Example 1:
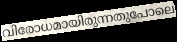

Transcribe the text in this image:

വിരോധമായിരുന്നതുപോലെ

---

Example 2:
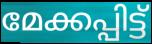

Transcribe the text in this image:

മേക്കപ്പിട്ട്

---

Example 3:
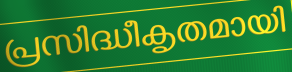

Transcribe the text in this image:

പ്രസിദ്ധീകൃതമായി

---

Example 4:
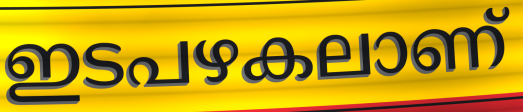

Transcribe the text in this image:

ഇടപഴകലാണ്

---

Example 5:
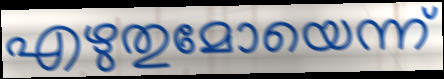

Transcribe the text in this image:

എഴുതുമോയെന്ന്